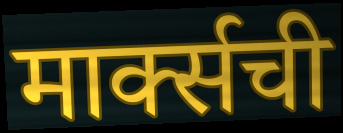
मार्क्सची